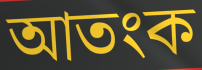
আতংক